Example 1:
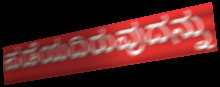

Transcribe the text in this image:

ಪಡೆಯದಿರುವುದನ್ನು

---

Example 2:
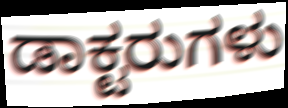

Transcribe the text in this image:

ಡಾಕ್ಟರುಗಳು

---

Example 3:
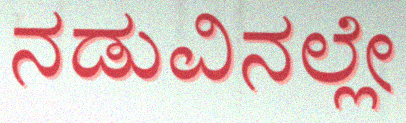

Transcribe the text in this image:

ನಡುವಿನಲ್ಲೇ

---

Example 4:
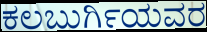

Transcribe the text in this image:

ಕಲಬುರ್ಗಿಯವರ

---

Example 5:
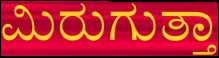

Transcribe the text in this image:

ಮಿರುಗುತ್ತಾ